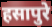
हसापुरे